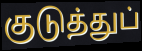
குடுத்துப்